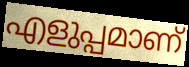
എളുപ്പമാണ്